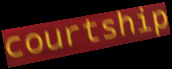
courtship